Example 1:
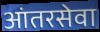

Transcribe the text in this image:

आंतरसेवा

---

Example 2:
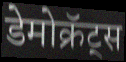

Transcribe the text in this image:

डेमोक्रॅट्स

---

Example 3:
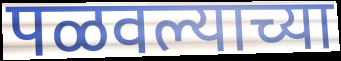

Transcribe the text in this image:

पळवल्याच्या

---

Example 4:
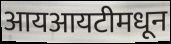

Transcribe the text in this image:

आयआयटीमधून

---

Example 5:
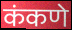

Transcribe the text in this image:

कंकणे